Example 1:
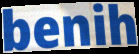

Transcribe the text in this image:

benih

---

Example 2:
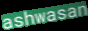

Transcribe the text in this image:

ashwasan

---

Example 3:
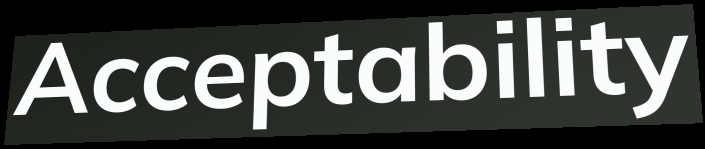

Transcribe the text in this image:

Acceptability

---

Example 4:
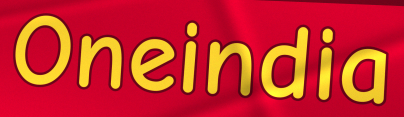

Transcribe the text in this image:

Oneindia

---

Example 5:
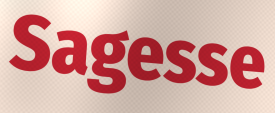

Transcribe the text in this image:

Sagesse